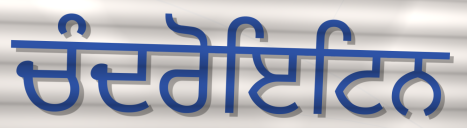
ਚੰਦਰੋਇਟਿਨ